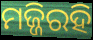
ମଜ୍ଜିରହି